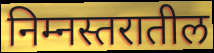
निम्नस्तरातील